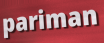
pariman